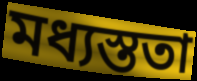
মধ্যস্ততা